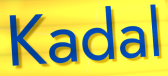
Kadal